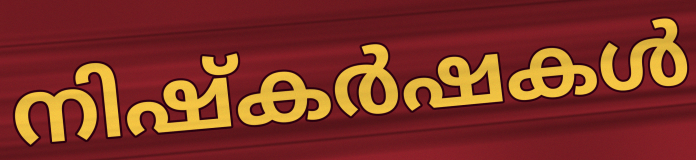
നിഷ്കർഷകൾ